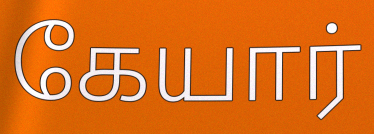
கேயார்